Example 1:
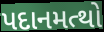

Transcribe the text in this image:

પદાનમત્થો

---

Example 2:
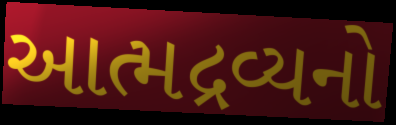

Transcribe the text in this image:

આત્મદ્રવ્યનો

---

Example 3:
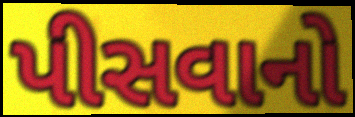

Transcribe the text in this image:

પીસવાનો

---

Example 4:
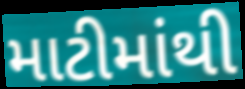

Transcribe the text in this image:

માટીમાંથી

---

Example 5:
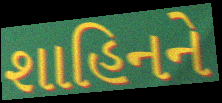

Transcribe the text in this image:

શાહિનને